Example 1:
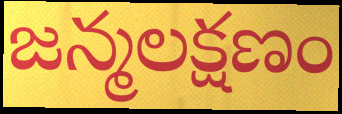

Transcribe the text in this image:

జన్మలక్షణం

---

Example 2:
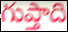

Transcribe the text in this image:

గుప్తాది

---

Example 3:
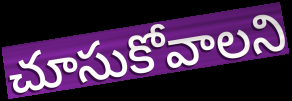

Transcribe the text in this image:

చూసుకోవాలని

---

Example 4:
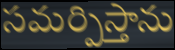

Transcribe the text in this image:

సమర్పిస్తాను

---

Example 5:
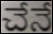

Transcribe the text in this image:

చేనే